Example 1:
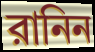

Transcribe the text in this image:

রানিন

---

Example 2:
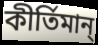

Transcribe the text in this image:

কীর্তিমান্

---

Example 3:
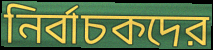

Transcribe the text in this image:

নির্বাচকদের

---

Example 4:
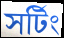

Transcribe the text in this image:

সর্টিং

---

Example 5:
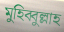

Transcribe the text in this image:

মুহিব্বুল্লাহ